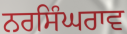
ਨਰਸਿੰਘਰਾਵ